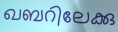
ഖബറിലേക്കു